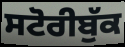
ਸਟੋਰੀਬੁੱਕ